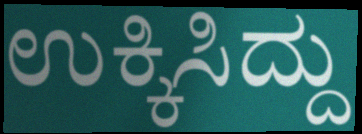
ಉಕ್ಕಿಸಿದ್ದು